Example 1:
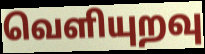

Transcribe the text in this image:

வெளியுறவு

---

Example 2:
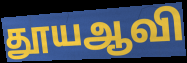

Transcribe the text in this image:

தூயஆவி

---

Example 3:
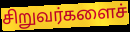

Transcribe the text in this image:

சிறுவர்களைச்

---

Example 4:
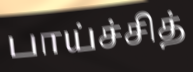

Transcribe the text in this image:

பாய்ச்சித்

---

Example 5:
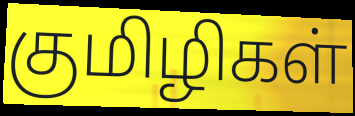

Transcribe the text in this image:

குமிழிகள்